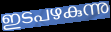
ഇടപഴകുന്നു